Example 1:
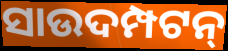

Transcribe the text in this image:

ସାଉଦମ୍ପଟନ୍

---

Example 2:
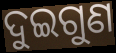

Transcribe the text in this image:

ଦୁଇଗୁଣ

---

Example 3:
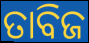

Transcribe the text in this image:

ତାବିଜ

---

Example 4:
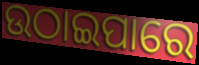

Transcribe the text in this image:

ଉଠାଇପାରେ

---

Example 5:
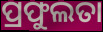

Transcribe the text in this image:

ପ୍ରଫୁଲତା